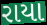
રાયા